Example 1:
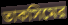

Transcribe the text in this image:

তাকসিমের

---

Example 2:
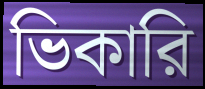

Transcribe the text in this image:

ভিকারি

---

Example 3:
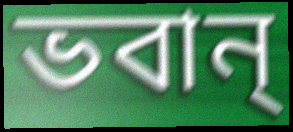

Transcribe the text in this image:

ভবান্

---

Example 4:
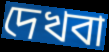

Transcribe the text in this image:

দেখবা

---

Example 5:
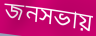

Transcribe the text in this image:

জনসভায়